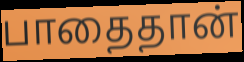
பாதைதான்